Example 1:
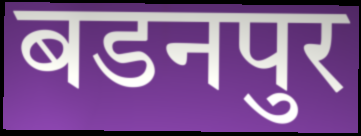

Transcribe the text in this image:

बडनपुर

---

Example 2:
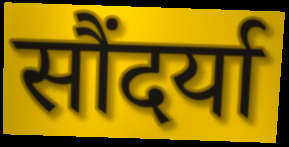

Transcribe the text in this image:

सौंदर्या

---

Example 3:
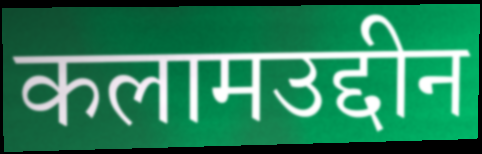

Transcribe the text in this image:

कलामउद्दीन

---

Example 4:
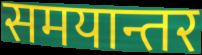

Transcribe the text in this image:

समयान्तर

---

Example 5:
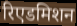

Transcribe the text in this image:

रिएडमिशन